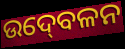
ଉଦ୍‍ବେଳନ